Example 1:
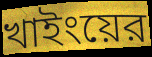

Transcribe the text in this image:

খাইংয়ের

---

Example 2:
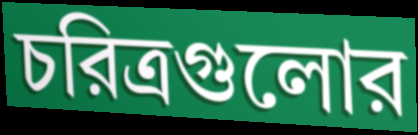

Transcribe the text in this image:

চরিত্রগুলোর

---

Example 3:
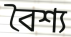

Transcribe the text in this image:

বৈশ্য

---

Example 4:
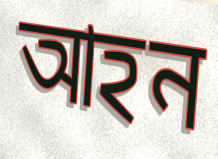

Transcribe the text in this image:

আহন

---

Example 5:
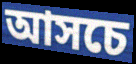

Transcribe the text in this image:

আসচে